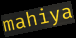
mahiya